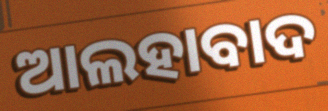
ଆଲହାବାଦ